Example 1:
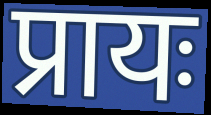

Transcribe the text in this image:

प्रायः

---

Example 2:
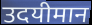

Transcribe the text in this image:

उदयीमान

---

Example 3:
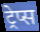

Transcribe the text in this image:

ट्रेप्स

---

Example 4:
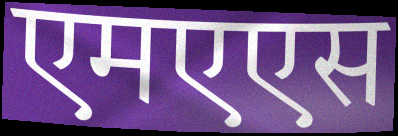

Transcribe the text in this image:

एमएएस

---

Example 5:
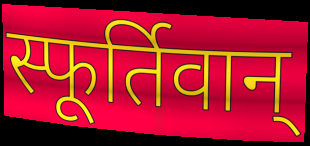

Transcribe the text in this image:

स्फूर्तिवान्